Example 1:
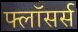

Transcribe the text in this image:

फ्लॉसर्स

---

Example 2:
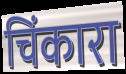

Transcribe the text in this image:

चिंकारा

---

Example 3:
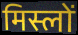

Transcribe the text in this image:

मिस्लों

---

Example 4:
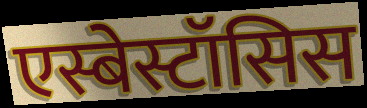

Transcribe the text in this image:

एस्बेस्टॉसिस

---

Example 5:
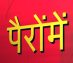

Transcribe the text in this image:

पैरोंमें